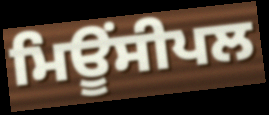
ਮਿਊਂਸੀਪਲ